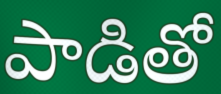
పాడితో